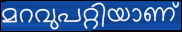
മറവുപറ്റിയാണ്